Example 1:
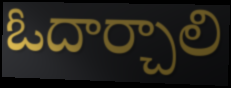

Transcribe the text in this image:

ఓదార్చాలి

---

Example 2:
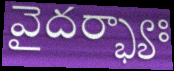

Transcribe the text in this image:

వైదర్భ్యాః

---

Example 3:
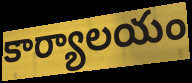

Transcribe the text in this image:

కార్యాలయం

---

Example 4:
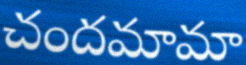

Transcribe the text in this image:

చందమామా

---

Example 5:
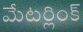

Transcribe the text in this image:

మేటర్లింక్